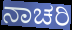
ನಾಚರಿ